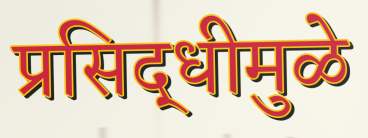
प्रसिद्धीमुळे